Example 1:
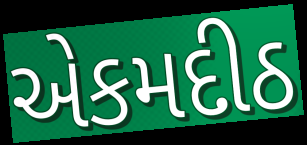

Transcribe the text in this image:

એકમદીઠ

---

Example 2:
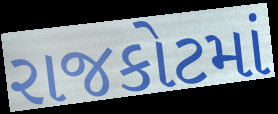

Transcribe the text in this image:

રાજકોટમાં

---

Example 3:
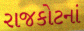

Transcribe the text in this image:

રાજકોટનાં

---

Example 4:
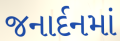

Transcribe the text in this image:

જનાર્દનમાં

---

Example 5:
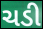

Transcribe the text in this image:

ચડી